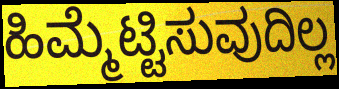
ಹಿಮ್ಮೆಟ್ಟಿಸುವುದಿಲ್ಲ